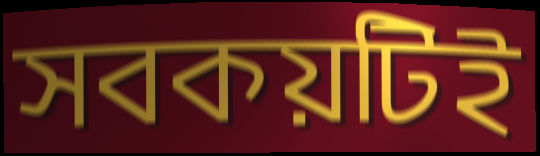
সবকয়টিই